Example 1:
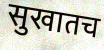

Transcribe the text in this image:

सुखातच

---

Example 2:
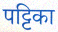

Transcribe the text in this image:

पट्टिका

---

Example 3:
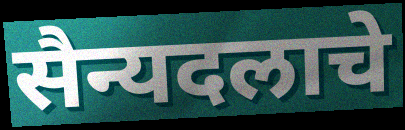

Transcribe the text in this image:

सैन्यदलाचे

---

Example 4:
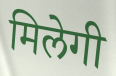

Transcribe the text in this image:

मिलेगी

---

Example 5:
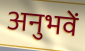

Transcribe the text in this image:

अनुभवें